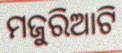
ମଜୁରିଆଟି